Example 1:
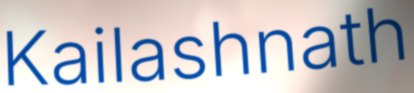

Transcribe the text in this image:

Kailashnath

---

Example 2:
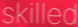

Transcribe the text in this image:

skilled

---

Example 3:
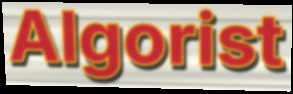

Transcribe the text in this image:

Algorist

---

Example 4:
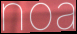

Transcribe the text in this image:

noa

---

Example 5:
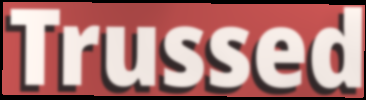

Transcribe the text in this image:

Trussed